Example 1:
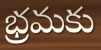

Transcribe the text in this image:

భ్రమకు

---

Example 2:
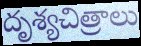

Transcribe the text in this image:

దృశ్యచిత్రాలు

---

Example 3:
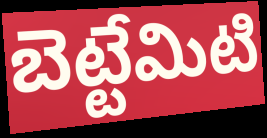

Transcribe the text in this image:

బెట్టేమిటి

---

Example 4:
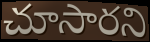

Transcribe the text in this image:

చూసారని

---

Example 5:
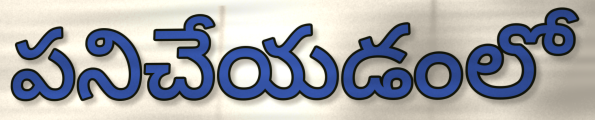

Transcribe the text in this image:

పనిచేయడంలో